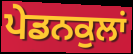
ਪੇਡਨਕੁਲਾਂ